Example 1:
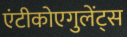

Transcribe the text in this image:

एंटीकोएगुलेंट्स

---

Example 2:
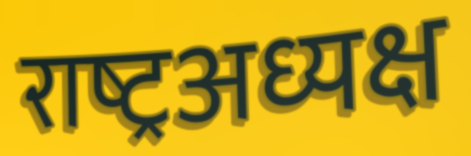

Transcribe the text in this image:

राष्ट्रअध्यक्ष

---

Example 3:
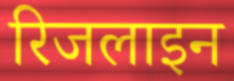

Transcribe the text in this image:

रिजलाइन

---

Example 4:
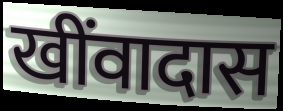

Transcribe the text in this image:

खींवादास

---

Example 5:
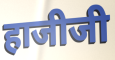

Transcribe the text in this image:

हाजीजी